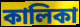
কালিকা